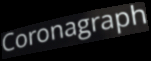
Coronagraph